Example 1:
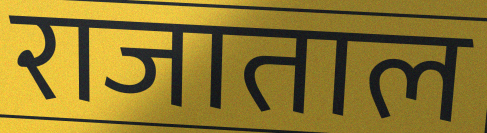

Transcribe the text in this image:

राजाताल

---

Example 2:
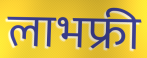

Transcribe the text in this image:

लाभफ्री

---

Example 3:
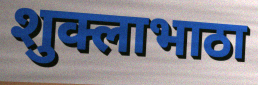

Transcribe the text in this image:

शुक्लाभाठा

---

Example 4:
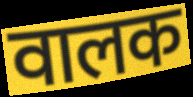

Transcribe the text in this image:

वालक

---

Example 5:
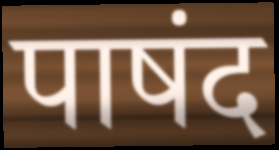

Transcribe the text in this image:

पाषंद